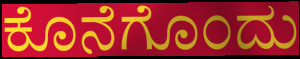
ಕೊನೆಗೊಂದು